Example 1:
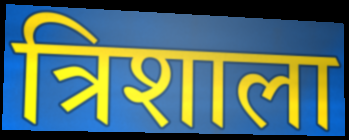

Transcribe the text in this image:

त्रिशाला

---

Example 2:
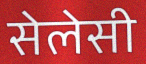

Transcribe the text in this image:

सेलेसी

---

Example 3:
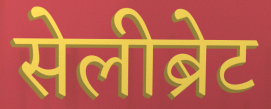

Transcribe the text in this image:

सेलीब्रेट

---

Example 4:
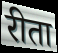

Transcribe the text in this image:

रीता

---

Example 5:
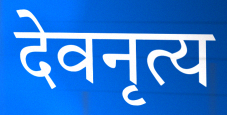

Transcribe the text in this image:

देवनृत्य